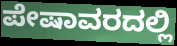
ಪೇಷಾವರದಲ್ಲಿ